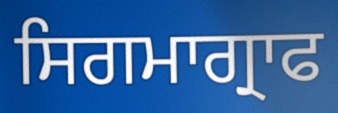
ਸਿਗਮਾਗ੍ਰਾਫ